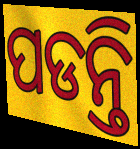
ପଡନ୍ତି